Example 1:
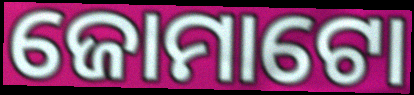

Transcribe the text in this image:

ଜୋମାଟୋ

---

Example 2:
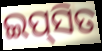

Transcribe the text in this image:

ଇପ୍‌ସିତ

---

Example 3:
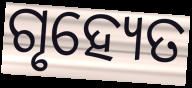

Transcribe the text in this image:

ଗୃହ୍ଯେତ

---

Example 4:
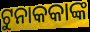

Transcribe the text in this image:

ଟୁନାକକାଙ୍କ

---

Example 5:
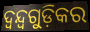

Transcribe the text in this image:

ଦ୍ୱନ୍ଦ୍ୱଗୁଡ଼ିକର